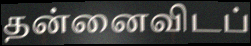
தன்னைவிடப்